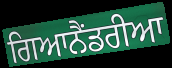
ਗਿਆਨੈਂਡਰੀਆ